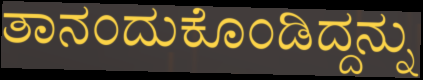
ತಾನಂದುಕೊಂಡಿದ್ದನ್ನು